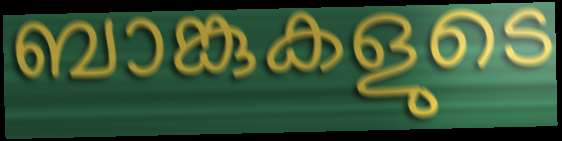
ബാങ്കുകളുടെ